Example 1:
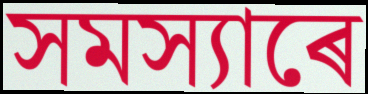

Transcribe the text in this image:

সমস্যাৰে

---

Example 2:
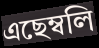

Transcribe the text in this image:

এছেম্বলি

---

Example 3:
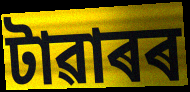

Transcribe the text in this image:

টাৱাৰৰ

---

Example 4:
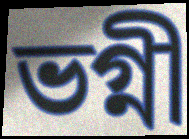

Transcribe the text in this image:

ভগ্নী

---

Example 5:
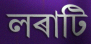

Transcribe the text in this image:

লৰাটি